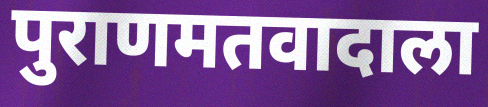
पुराणमतवादाला